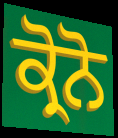
ਕ੍ਰੋਨੋ